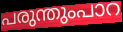
പരുന്തുംപാറ